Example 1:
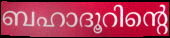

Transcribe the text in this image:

ബഹാദൂറിന്റെ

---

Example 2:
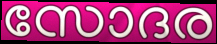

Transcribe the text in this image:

സോദര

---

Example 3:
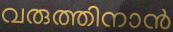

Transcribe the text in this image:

വരുത്തിനാൻ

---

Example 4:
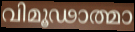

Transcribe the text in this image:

വിമൂഢാത്മാ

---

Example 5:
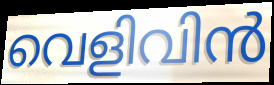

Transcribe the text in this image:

വെളിവിൻ